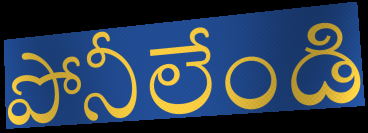
పోనీలేండి